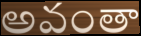
అవంతా